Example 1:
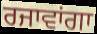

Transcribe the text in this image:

ਰਜਾਵਾਂਗਾ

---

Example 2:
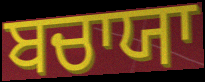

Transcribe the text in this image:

ਬਚਾਯਾ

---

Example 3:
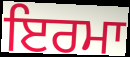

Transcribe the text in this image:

ਇਰਮਾ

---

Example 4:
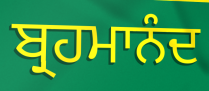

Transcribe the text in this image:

ਬ੍ਰਹਮਾਨੰਦ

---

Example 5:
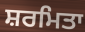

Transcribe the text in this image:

ਸ਼ਰਮਿਤਾ